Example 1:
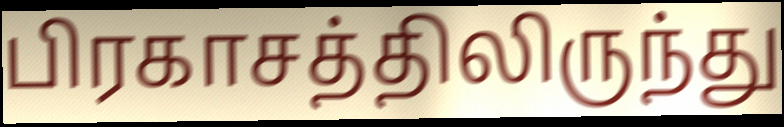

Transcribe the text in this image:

பிரகாசத்திலிருந்து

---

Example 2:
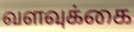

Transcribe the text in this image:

வளவுக்கை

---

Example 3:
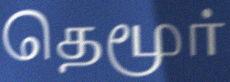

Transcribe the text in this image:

தெமூர்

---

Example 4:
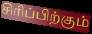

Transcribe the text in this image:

சிரிப்பிற்கும்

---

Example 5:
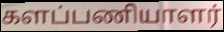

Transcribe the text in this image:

களப்பணியாளர்